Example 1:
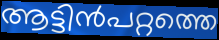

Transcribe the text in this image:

ആട്ടിൻപറ്റത്തെ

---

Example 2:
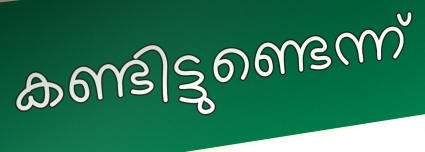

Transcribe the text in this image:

കണ്ടിട്ടുണ്ടെന്ന്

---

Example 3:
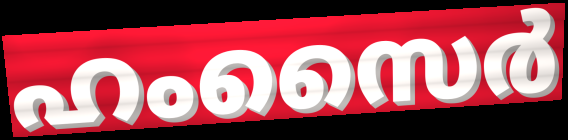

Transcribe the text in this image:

ഹംസൈർ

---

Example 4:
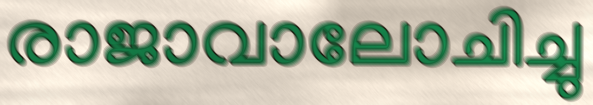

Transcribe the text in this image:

രാജാവാലോചിച്ചു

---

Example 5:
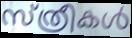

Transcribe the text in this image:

സ്‌ത്രീകൾ